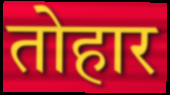
तोहार